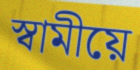
স্বামীয়ে